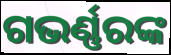
ଗଭର୍ଣ୍ଣରଙ୍କ